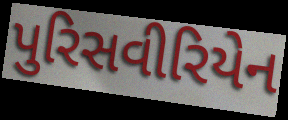
પુરિસવીરિયેન